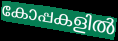
കോപ്പകളിൽ